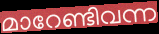
മാറേണ്ടിവന്ന